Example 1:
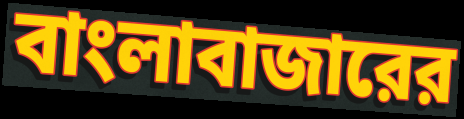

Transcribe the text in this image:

বাংলাবাজারের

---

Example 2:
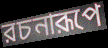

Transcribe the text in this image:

রচনারূপে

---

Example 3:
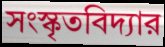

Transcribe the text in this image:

সংস্কৃতবিদ্যার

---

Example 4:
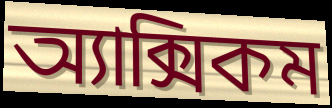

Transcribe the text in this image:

অ্যাক্সিকম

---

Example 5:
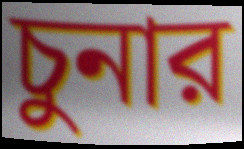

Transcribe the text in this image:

চুনার